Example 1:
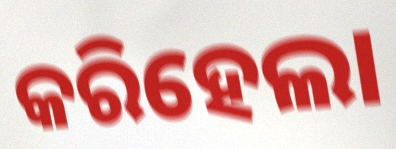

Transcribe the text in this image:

କରିହେଲା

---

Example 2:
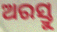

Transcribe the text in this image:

ଅରସ୍ତୁ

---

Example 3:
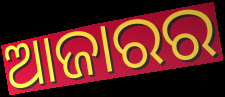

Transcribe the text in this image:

ଆଜାରର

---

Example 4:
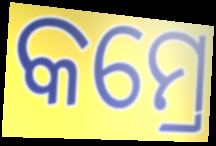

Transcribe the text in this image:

କମ୍ରେ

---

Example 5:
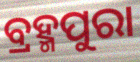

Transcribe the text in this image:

ବ୍ରହ୍ମପୁରା